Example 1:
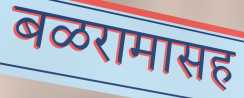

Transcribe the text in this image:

बळरामासह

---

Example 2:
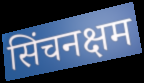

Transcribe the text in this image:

सिंचनक्षम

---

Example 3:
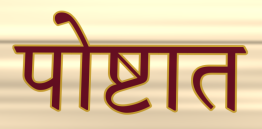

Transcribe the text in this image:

पोष्टात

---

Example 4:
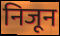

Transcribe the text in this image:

निजून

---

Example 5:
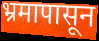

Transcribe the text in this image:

भ्रमापासून